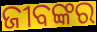
ଜୀବଙ୍କର